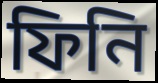
ফিনি